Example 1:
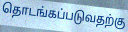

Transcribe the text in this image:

தொடங்கப்படுவதற்கு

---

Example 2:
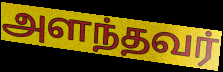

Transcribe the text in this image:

அளந்தவர்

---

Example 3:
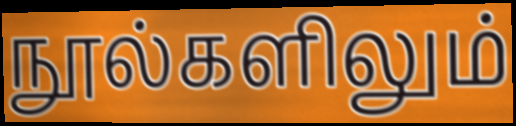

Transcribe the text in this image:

நூல்களிலும்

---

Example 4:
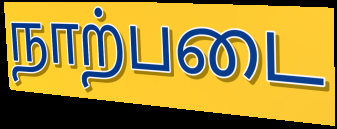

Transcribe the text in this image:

நாற்படை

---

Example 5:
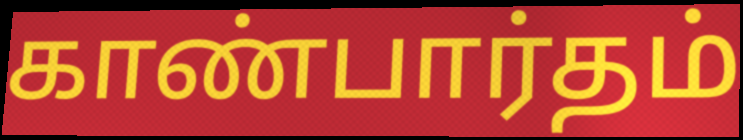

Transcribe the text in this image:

காண்பார்தம்